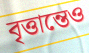
বৃত্তান্তেও